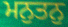
ਮਨੁਤਨੁ